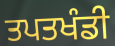
ਤਪਤਖੰਡੀ